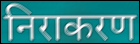
निराकरण